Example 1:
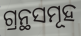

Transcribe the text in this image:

ଗ୍ରନ୍ଥସମୂହ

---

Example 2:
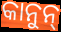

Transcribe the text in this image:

କାନୁନ୍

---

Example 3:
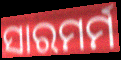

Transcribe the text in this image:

ସାରମର୍ମ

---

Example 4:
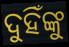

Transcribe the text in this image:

ଦୁହିଁଙ୍କୁ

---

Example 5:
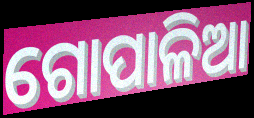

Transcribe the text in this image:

ଗୋପାଳିଆ